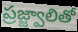
ప్రజ్జ్వాలితో